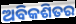
ଅବିକଶିତର